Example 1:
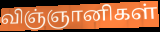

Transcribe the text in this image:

விஞ்ஞானிகள்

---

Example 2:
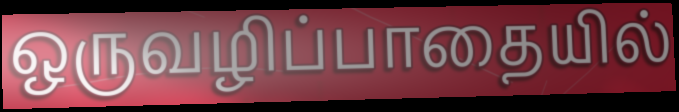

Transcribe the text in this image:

ஒருவழிப்பாதையில்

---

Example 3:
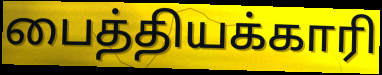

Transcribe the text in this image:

பைத்தியக்காரி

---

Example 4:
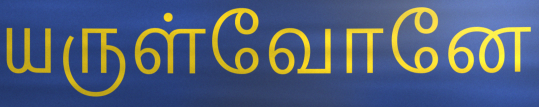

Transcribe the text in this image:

யருள்வோனே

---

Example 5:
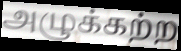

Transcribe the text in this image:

அழுக்கற்ற